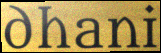
dhani